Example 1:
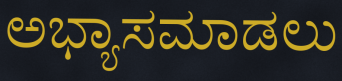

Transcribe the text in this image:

ಅಭ್ಯಾಸಮಾಡಲು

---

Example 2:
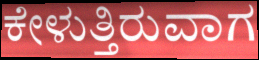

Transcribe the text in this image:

ಕೇಳುತ್ತಿರುವಾಗ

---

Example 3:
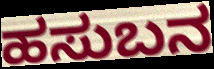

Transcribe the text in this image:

ಹಸುಬನ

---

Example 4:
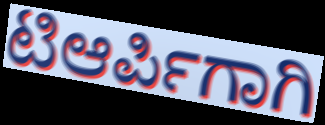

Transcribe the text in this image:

ಟಿಆರ್ಪಿಗಾಗಿ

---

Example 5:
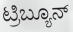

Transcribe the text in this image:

ಟ್ರಿಬ್ಯೂನ್